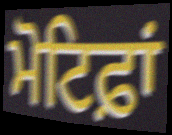
ਮੋਟਿਫ਼ਾਂ